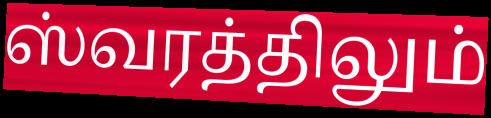
ஸ்வரத்திலும்